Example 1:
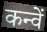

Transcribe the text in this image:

कन्वें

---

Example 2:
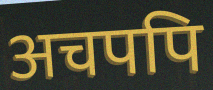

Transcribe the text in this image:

अचपपि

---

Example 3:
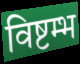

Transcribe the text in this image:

विष्टम्भ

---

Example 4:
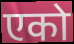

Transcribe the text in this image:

एको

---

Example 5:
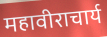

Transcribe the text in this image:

महावीराचार्य